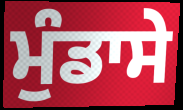
ਮੁੰਡਾਸੇ